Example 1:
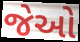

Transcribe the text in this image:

જેઓ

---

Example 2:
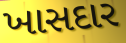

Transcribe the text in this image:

ખાસદાર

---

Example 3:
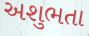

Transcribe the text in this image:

અશુભતા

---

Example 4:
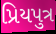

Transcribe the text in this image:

પ્રિયપુત્ર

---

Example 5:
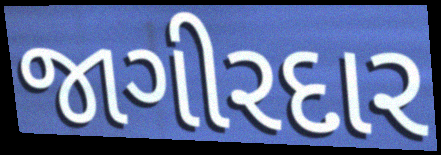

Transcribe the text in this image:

જાગીરદાર